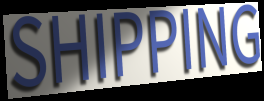
SHIPPING